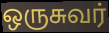
ஒருசுவர்